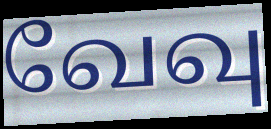
வேவு